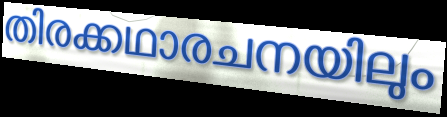
തിരക്കഥാരചനയിലും